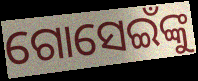
ଗୋସେଇଁଙ୍କୁ